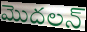
మొదలన్